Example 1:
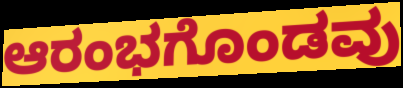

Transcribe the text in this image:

ಆರಂಭಗೊಂಡವು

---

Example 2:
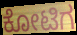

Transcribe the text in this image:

ಕೋಟಿಗ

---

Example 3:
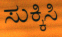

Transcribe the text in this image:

ಸುಕ್ಕಿಸಿ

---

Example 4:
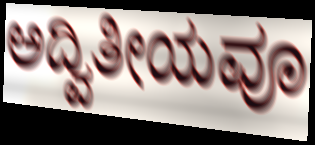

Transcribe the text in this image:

ಅದ್ವಿತೀಯವೂ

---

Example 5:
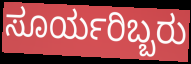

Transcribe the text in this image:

ಸೂರ್ಯರಿಬ್ಬರು